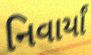
નિવાર્યાં